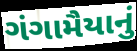
ગંગામૈયાનું